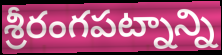
శ్రీరంగపట్నాన్ని